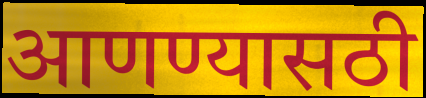
आणण्यासठी